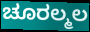
ಚೂರಲ್ಮಲ